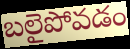
బలైపోవడం